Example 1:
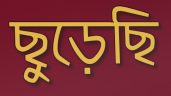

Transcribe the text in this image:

ছুড়েছি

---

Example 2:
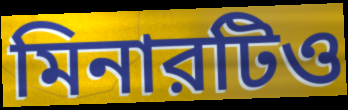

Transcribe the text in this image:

মিনারটিও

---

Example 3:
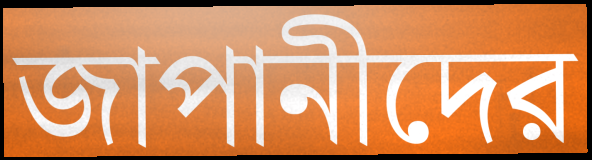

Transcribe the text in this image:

জাপানীদের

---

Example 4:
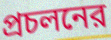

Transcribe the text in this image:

প্রচলনের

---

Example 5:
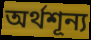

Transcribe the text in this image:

অর্থশূন্য